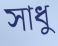
সাধু